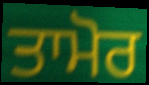
ਤਾਮੋਰ